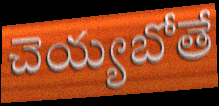
చెయ్యబోతే